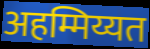
अहम्मिय्यत